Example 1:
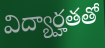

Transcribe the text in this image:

విద్యార్హతతో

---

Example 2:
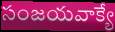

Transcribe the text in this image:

సంజయవాక్యే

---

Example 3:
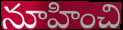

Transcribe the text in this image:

నూహించి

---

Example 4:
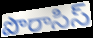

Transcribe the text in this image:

పొరాసిస్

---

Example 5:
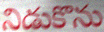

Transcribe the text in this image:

నిడుకొను